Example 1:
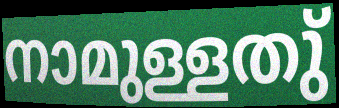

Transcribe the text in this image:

നാമുള്ളതു്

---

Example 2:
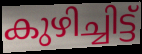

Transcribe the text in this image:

കുഴിച്ചിട്ട്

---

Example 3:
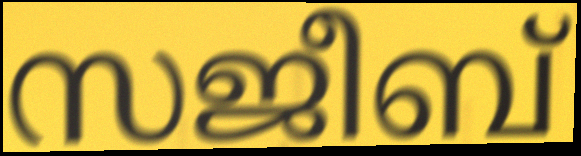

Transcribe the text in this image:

സജീബ്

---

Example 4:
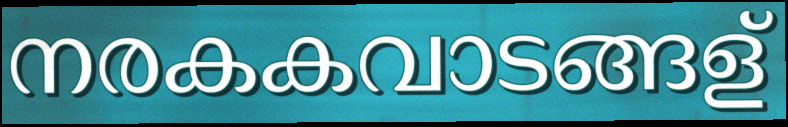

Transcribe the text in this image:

നരകകവാടങ്ങള്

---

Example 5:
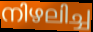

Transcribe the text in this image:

നിഴലിച്ച